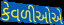
કેવળીઓએ